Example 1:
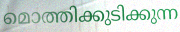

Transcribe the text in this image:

മൊത്തിക്കുടിക്കുന്ന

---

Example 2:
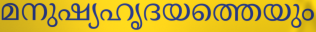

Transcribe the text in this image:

മനുഷ്യഹൃദയത്തെയും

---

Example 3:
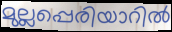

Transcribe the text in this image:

മുല്ലപ്പെരിയാറിൽ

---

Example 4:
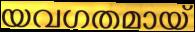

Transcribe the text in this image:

യവഗതമായ്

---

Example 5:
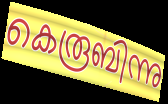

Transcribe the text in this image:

കെരൂബിന്നു